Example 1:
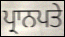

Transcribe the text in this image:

ਪ੍ਰਾਨਪਤੇ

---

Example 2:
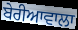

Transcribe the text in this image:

ਬੇਰੀਆਵਾਲਾ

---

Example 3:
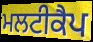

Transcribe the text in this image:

ਮਲਟੀਕੈਪ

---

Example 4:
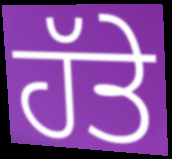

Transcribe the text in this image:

ਹੱਤੇ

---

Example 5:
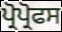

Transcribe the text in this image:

ਪ੍ਰੋਪ੍ਰੋਫਸ